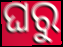
ଘରୁ